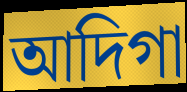
আদিগা